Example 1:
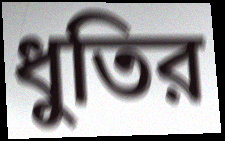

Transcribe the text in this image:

ধুতির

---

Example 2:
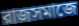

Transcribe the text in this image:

রাজসমাজে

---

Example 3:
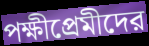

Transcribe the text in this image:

পক্ষীপ্রেমীদের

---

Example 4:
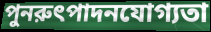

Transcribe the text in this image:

পুনরুৎপাদনযোগ্যতা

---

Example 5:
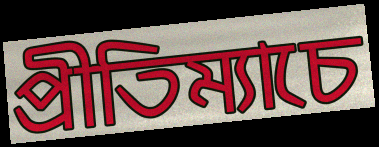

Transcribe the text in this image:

প্রীতিম্যাচে